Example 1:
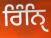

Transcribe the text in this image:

ਰਿੰਨਿੑ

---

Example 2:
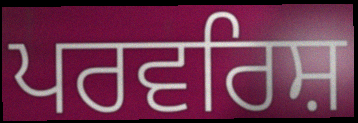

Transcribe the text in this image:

ਪਰਵਰਿਸ਼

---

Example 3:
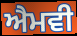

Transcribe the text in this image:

ਐਮਵੀ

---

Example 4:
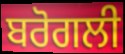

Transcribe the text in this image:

ਬਰੋਗਲੀ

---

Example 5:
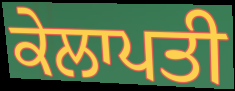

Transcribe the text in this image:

ਕੇਲਾਪਤੀ